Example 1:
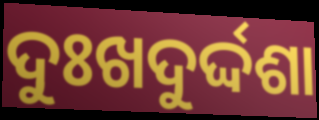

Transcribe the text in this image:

ଦୁଃଖଦୁର୍ଦ୍ଦଶା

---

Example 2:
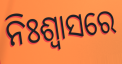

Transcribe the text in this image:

ନିଃଶ୍ଵାସରେ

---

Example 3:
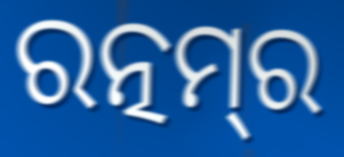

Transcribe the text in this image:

ରତ୍ନମ୍‌ର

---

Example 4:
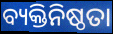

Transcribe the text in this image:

ବ୍ୟକ୍ତିନିଷ୍ଠତା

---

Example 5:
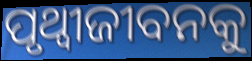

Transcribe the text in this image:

ପୃଥ୍ୱୀଜୀବନକୁ